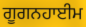
ਗੂਗਨਹਾਈਮ